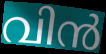
വിൻ